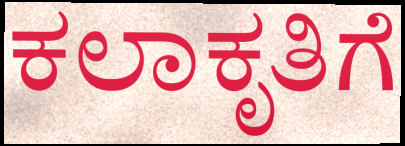
ಕಲಾಕೃತಿಗೆ